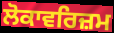
ਲੋਕਾਵਰਿਜ਼ਮ